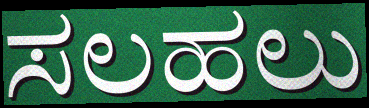
ಸಲಹಲು